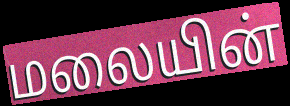
மலையின்